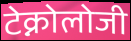
टेक्नोलोजी